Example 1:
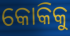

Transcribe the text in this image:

କୋକିକୁ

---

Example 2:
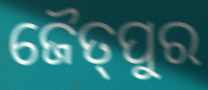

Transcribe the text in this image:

ଜୈତ୍‌ପୁର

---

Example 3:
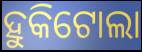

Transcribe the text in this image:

ହୁକିଟୋଲା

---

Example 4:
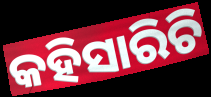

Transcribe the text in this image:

କହିସାରିଚି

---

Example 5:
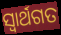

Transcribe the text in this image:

ସ୍ୱାର୍ଥଗତ